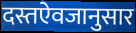
दस्तऐवजानुसार